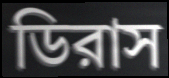
ডিরাস